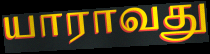
யாராவது